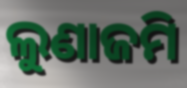
ଲୁଣାଜମି